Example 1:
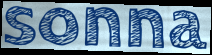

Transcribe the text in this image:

sonna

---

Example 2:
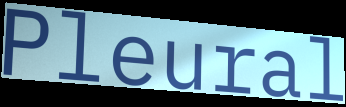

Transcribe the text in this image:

Pleural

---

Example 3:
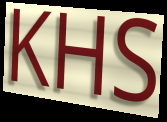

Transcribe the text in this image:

KHS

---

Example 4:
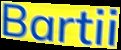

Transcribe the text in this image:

Bartii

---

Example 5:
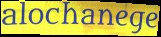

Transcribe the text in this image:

alochanege